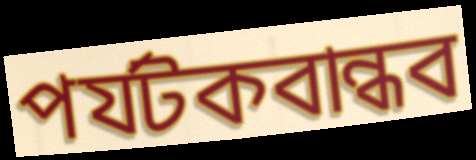
পর্যটকবান্ধব